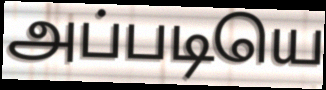
அப்படியெ